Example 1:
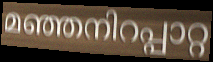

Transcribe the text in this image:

മഞ്ഞനിറപ്പാറ്റ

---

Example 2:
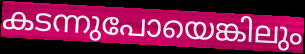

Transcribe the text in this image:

കടന്നുപോയെങ്കിലും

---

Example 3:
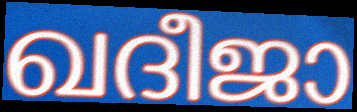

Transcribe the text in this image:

ഖദീജാ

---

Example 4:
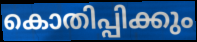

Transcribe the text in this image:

കൊതിപ്പിക്കും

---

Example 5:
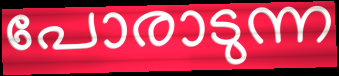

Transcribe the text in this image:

പോരാടുന്ന